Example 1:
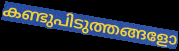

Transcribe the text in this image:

കണ്ടുപിടുത്തങ്ങളോ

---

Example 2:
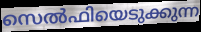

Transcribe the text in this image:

സെൽഫിയെടുക്കുന്ന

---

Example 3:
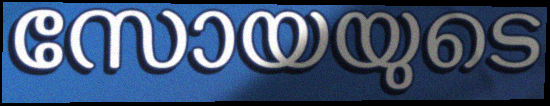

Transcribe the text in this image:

സോയയുടെ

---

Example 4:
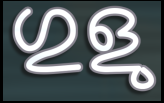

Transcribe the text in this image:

ഗുളു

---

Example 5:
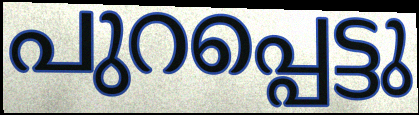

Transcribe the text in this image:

പുറപ്പെട്ടു